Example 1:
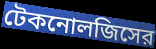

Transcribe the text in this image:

টেকনোলজিসের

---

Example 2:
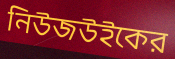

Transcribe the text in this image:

নিউজউইকের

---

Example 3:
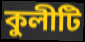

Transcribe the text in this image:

কুলীটি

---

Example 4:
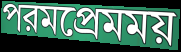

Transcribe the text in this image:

পরমপ্রেমময়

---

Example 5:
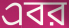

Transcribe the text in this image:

এবর